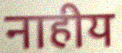
नाहीय